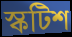
স্কটিশ